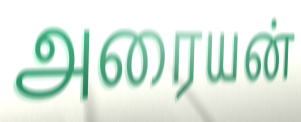
அரையன்